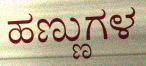
ಹಣ್ಣುಗಳ